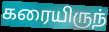
கரையிருந்